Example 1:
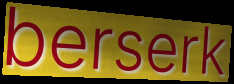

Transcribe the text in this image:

berserk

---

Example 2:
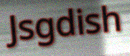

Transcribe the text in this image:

Jsgdish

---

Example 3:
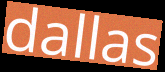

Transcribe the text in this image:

dallas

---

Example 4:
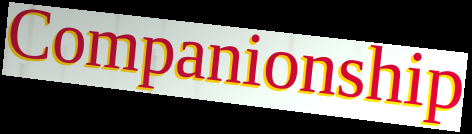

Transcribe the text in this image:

Companionship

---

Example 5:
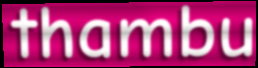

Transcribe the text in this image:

thambu